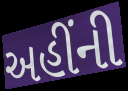
અહીંની